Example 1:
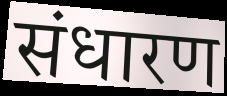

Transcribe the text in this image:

संधारण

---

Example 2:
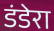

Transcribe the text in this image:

डंडेरा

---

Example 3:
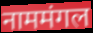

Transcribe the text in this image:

नाममंगल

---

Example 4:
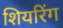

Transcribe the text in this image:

शियरिंग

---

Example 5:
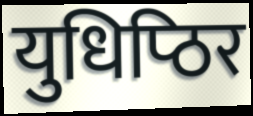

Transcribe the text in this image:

युधिप्ठिर